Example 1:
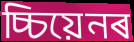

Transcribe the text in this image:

চ্চিয়েনৰ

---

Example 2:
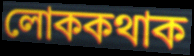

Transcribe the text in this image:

লোককথাক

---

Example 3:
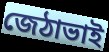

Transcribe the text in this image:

জেঠাভাই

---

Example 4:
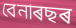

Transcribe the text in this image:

বেনাৰছৰ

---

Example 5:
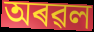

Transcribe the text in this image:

অৰৱল